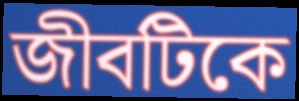
জীবটিকে